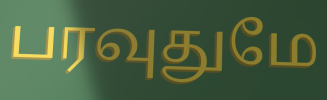
பரவுதுமே